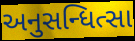
અનુસન્ધિત્સા